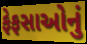
ફેફસાઓનું